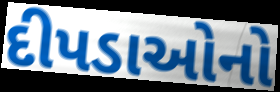
દીપડાઓનો